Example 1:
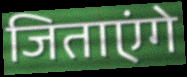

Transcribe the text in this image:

जिताएंगे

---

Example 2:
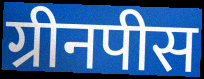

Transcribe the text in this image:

ग्रीनपीस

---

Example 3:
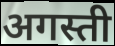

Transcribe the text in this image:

अगस्ती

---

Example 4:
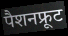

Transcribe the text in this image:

पैशनफ्रूट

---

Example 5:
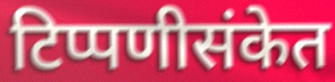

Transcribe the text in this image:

टिप्पणीसंकेत